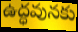
ఉద్ధవునకు